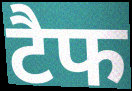
टैफ